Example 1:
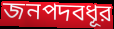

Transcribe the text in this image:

জনপদবধূর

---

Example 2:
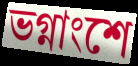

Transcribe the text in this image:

ভগ্নাংশে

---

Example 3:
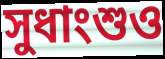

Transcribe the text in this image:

সুধাংশুও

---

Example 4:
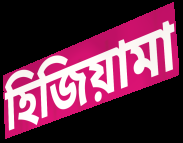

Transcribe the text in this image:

হিজিয়ামা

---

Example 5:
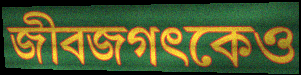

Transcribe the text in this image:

জীবজগৎকেও